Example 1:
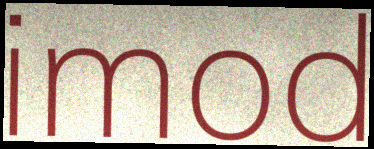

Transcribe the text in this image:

imod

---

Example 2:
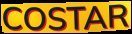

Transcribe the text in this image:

COSTAR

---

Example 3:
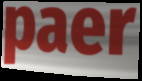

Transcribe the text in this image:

paer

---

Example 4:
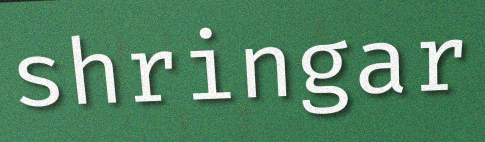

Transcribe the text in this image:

shringar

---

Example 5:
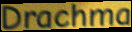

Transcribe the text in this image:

Drachma